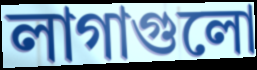
লাগাগুলো